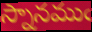
స్నానముఁ